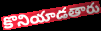
కొనియాడతారు